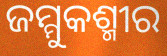
ଜମ୍ମୁକଶ୍ମୀର